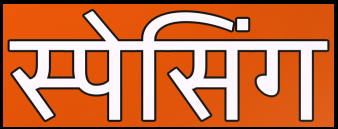
स्पेसिंग